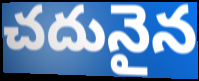
చదునైన